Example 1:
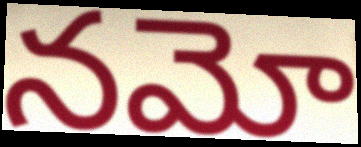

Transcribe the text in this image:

నమో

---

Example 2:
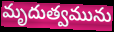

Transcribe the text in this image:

మృదుత్వమును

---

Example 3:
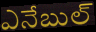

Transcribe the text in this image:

ఎనేబుల్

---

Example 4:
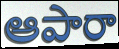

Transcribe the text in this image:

ఆపారా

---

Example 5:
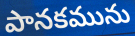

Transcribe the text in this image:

పానకమును